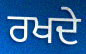
ਰਖਦੇ